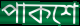
পাকশে